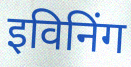
इविनिंग